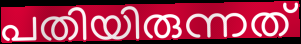
പതിയിരുന്നത്